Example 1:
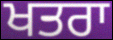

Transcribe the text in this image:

ਖਤਰਾ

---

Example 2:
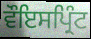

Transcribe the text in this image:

ਵੌਇਸਪ੍ਰਿੰਟ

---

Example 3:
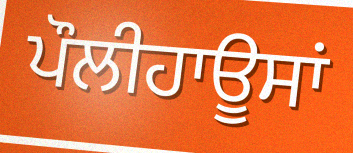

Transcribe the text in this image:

ਪੌਲੀਹਾਊਸਾਂ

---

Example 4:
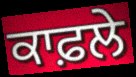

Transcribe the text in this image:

ਕਾਫ਼ਲੇ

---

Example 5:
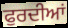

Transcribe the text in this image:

ਫੁਰਦੀਆਂ